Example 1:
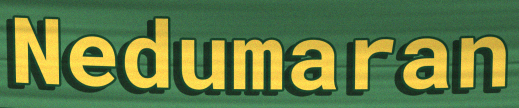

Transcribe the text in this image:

Nedumaran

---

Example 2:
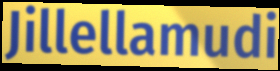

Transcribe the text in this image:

Jillellamudi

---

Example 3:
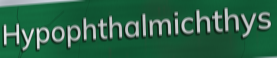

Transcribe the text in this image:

Hypophthalmichthys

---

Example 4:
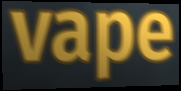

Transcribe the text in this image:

vape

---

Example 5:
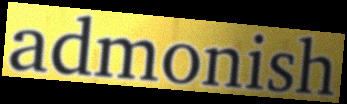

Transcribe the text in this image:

admonish